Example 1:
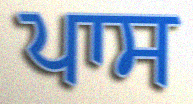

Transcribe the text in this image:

ਪਾਸ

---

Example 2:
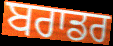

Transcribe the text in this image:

ਬਰਾਡਰ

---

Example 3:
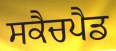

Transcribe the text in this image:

ਸਕੈਚਪੈਡ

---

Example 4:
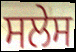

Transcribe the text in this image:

ਸਲੇਸ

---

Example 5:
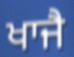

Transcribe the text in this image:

ਖਾਜੈ